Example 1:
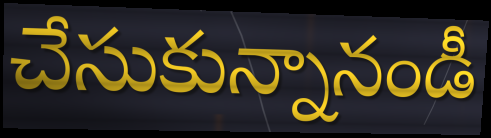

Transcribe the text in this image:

చేసుకున్నానండీ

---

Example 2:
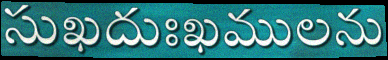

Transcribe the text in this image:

సుఖదుఃఖములను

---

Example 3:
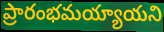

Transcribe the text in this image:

ప్రారంభమయ్యాయని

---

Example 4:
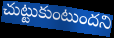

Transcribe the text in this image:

చుట్టుకుంటుందని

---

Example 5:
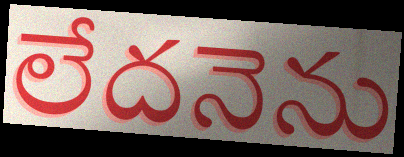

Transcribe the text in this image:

లేదనెను